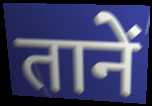
तानें